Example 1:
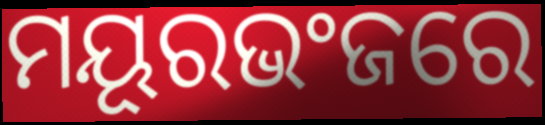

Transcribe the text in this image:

ମୟୂରଭଂଜରେ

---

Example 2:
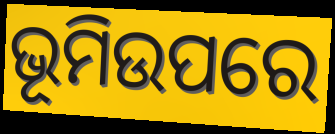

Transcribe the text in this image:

ଭୂମିଉପରେ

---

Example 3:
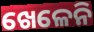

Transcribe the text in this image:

ଖେଳେନି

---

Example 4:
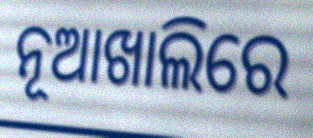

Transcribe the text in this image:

ନୂଆଖାଲିରେ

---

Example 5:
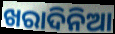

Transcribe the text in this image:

ଖରାଦିନିଆ